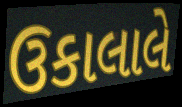
ઉકાલાલે